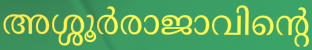
അശ്ശൂർരാജാവിന്റെ